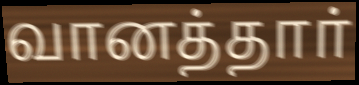
வானத்தார்